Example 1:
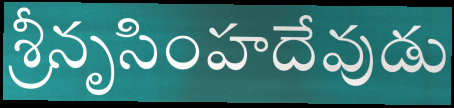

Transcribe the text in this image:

శ్రీనృసింహదేవుడు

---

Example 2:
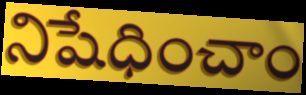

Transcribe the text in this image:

నిషేధించాం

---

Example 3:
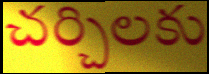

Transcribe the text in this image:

చర్చిలకు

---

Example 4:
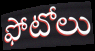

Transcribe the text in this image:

ఫోటోలు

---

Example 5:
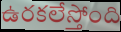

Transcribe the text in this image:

ఉరకలేస్తోంది